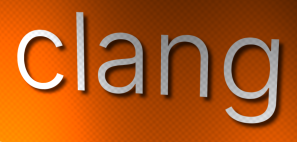
clang